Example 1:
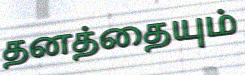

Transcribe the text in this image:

தனத்தையும்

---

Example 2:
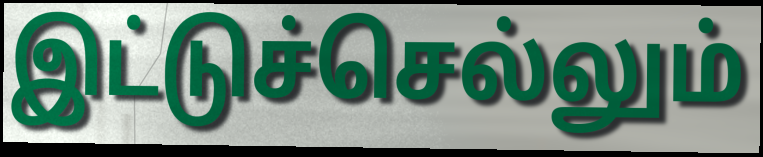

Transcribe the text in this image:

இட்டுச்செல்லும்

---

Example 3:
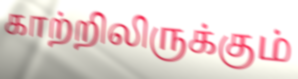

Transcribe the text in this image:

காற்றிலிருக்கும்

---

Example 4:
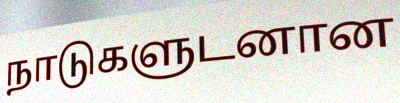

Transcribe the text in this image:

நாடுகளுடனான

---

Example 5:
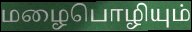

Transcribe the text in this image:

மழைபொழியும்